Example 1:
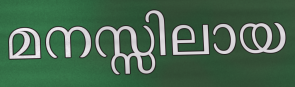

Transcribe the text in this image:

മനസ്സിലായ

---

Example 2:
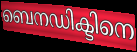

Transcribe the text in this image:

ബെനഡിക്ടിനെ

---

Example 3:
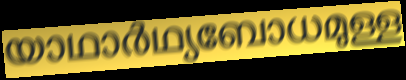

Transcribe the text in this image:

യാഥാർഥ്യബോധമുള്ള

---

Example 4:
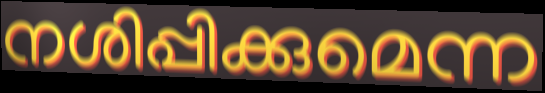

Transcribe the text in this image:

നശിപ്പിക്കുമെന്ന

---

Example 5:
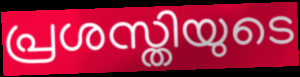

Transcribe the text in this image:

പ്രശസ്തിയുടെ